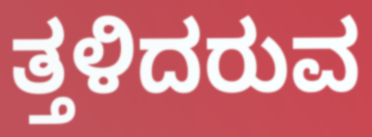
ತ್ತಳಿದರುವ